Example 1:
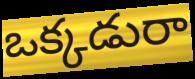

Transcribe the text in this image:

ఒక్కడురా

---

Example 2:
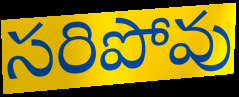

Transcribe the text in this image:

సరిపోవు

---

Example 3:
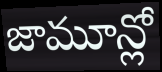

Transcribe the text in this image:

జామూన్లో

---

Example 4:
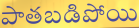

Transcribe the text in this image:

పాతబడిపోయి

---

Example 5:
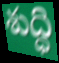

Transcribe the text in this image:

శుద్ధి